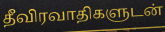
தீவிரவாதிகளுடன்